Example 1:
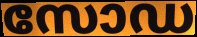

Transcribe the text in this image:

സോഡ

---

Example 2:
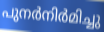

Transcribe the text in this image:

പുനർനിർമിച്ചു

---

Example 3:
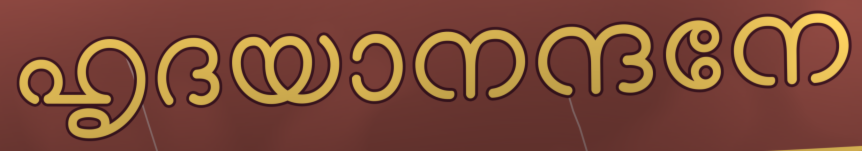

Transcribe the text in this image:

ഹൃദയാനന്ദനേ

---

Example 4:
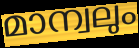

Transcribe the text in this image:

മാന്വലും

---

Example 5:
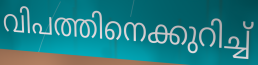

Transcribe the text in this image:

വിപത്തിനെക്കുറിച്ച്